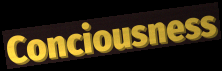
Conciousness